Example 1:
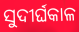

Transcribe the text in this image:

ସୁଦୀର୍ଘକାଳ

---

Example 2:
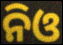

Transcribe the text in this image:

ନିଓ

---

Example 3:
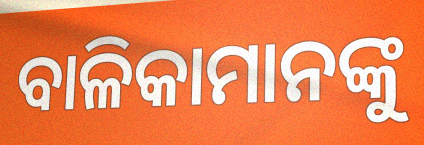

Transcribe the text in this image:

ବାଳିକାମାନଙ୍କୁ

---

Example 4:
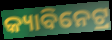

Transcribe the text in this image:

କ୍ୟାବିନେଟ୍ର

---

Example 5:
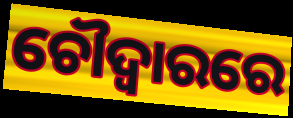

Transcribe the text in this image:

ଚୌଦ୍ୱାରରେ